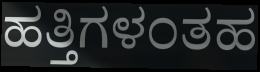
ಹತ್ತಿಗಳಂತಹ